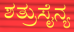
ಶತ್ರುಸೈನ್ಯ